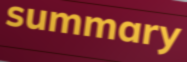
summary